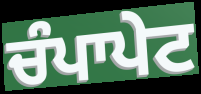
ਚੰਪਾਪੇਟ